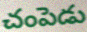
చంపెడు